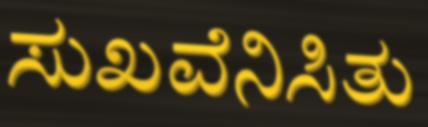
ಸುಖವೆನಿಸಿತು